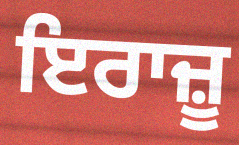
ਇਰਾਜ਼ੂ